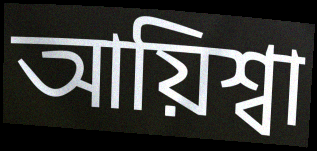
আয়িশ্বা